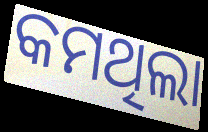
କମଥିଲା